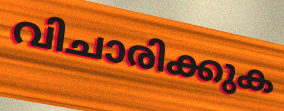
വിചാരിക്കുക